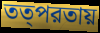
তত্পরতায়